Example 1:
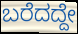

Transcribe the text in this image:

ಬರೆದದ್ದೇ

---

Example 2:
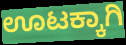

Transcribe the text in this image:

ಊಟಕ್ಕಾಗಿ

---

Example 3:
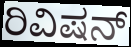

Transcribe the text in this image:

ರಿವಿಷನ್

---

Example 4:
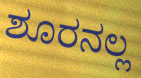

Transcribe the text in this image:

ಶೂರನಲ್ಲ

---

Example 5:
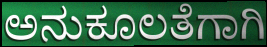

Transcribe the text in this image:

ಅನುಕೂಲತೆಗಾಗಿ